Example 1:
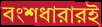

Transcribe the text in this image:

বংশধারারই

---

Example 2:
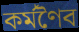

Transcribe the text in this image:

কর্মণৈব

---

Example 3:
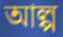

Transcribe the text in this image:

আল্প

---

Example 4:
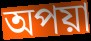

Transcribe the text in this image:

অপয়া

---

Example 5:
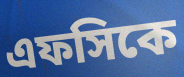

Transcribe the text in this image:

এফসিকে